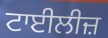
ਟਾਈਲੀਜ਼